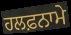
ਹਲਫ਼ਨਾਮੇ